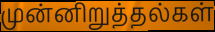
முன்னிறுத்தல்கள்